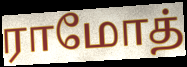
ராமோத்